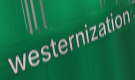
westernization